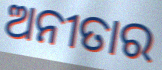
ଅନୀତାର